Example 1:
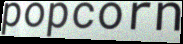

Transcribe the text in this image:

popcorn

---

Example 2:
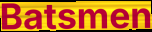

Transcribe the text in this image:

Batsmen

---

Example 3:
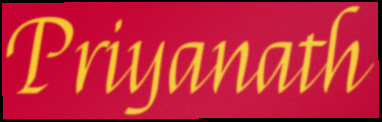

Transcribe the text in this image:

Priyanath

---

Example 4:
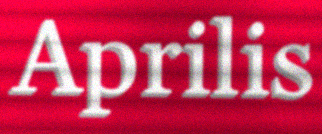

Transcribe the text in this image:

Aprilis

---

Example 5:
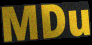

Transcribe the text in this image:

MDu